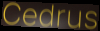
Cedrus